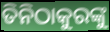
ତିନିଠାକୁରଙ୍କୁ